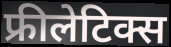
फ्रीलेटिक्स